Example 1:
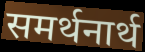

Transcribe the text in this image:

समर्थनार्थ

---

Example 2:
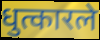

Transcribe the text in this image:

धुत्कारले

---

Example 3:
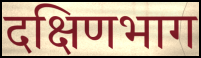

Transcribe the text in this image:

दक्षिणभाग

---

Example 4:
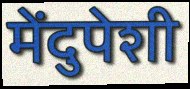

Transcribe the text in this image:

मेंदुपेशी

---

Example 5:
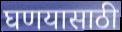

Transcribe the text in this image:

घणयासाठी